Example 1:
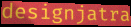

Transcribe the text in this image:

designjatra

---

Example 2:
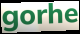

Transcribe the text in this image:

gorhe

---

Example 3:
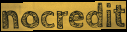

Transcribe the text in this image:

nocredit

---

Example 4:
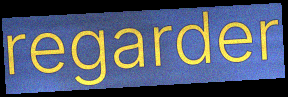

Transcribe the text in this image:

regarder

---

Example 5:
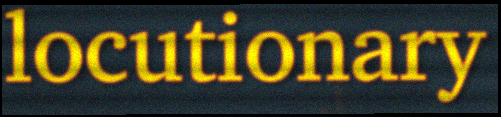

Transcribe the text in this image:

locutionary